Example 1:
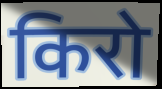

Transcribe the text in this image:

किरो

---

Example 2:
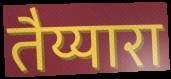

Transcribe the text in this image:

तैय्यारा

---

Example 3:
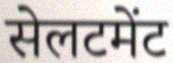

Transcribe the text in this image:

सेलटमेंट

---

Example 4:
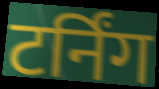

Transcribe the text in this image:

टर्निंग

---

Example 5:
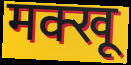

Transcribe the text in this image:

मक्खू